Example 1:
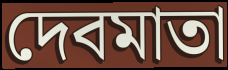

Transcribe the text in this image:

দেবমাতা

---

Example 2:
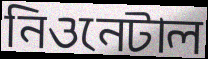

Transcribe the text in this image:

নিওনেটাল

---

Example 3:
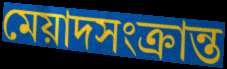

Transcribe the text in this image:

মেয়াদসংক্রান্ত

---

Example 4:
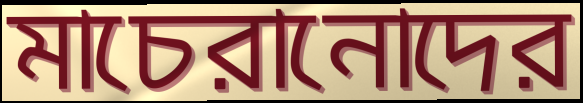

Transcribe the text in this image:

মাচেরানোদের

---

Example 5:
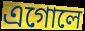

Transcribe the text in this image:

এগোলে